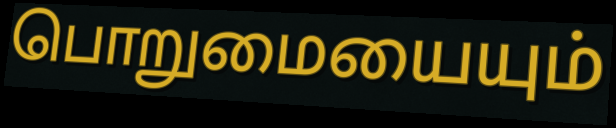
பொறுமையையும்